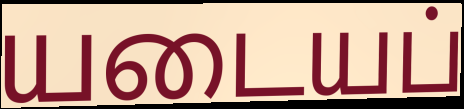
யடையப்